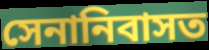
সেনানিবাসত